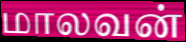
மாலவன்